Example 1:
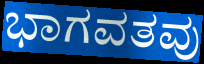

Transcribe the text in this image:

ಭಾಗವತವು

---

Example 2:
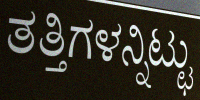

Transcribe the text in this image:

ತತ್ತಿಗಳನ್ನಿಟ್ಟು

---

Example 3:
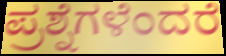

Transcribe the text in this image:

ಪ್ರಶ್ನೆಗಳೆಂದರೆ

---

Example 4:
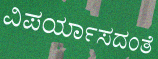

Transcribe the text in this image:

ವಿಪರ್ಯಾಸದಂತೆ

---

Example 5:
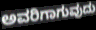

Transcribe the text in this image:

ಅವರಿಗಾಗುವುದು